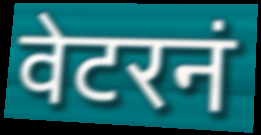
वेटरनं